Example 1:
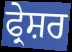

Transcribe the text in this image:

ਫ੍ਰੇਸ਼ਰ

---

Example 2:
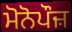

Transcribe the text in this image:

ਮੋਨੋਪੌਜ਼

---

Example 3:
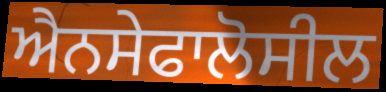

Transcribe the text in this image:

ਐਨਸੇਫਾਲੋਸੀਲ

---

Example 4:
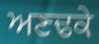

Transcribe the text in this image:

ਅਣਢਕੇ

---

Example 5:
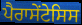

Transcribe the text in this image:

ਪੈਰਾਸੇਂਟੇਸਿਸ